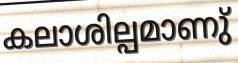
കലാശില്പമാണു്